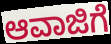
ಆವಾಜಿಗೆ